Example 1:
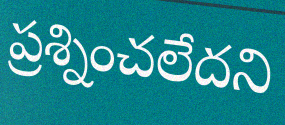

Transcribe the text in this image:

ప్రశ్నించలేదని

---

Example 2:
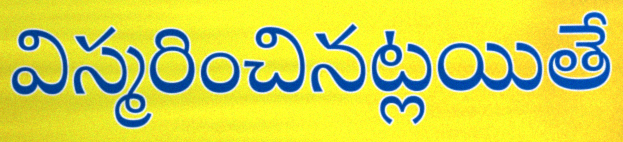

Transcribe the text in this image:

విస్మరించినట్లయితే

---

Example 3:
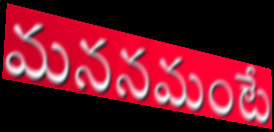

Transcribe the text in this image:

మననమంటే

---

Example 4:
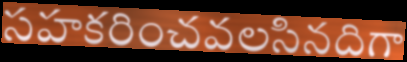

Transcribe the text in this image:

సహకరించవలసినదిగా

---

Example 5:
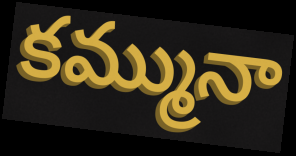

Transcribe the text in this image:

కమ్మునా